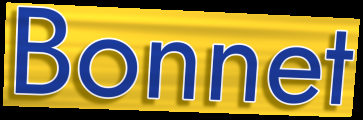
Bonnet